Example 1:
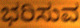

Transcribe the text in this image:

ಭರಿಸುವ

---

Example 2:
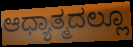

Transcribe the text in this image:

ಆಧ್ಯಾತ್ಮದಲ್ಲೂ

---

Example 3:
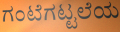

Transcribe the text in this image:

ಗಂಟೆಗಟ್ಟಲೆಯ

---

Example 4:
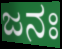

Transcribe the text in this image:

ಜನಃ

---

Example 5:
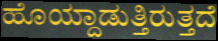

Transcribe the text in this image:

ಹೊಯ್ದಾಡುತ್ತಿರುತ್ತದೆ